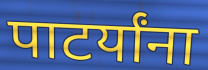
पाटर्यांना